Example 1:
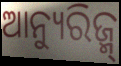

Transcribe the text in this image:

ଆନ୍ୟୁରିଜ୍ମ୍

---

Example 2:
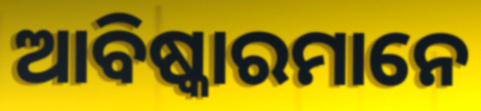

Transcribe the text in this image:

ଆବିଷ୍କାରମାନେ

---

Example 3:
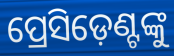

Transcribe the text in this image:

ପ୍ରେସିଡ଼େଣ୍ଟଙ୍କୁ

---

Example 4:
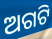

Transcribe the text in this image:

ଅଗଟି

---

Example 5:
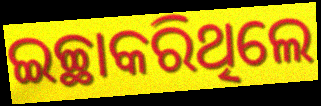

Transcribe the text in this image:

ଇଚ୍ଛାକରିଥିଲେ